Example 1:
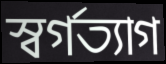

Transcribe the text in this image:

স্বর্গত্যাগ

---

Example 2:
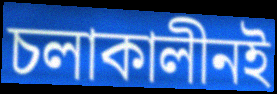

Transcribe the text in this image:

চলাকালীনই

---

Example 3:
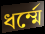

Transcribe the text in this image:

ধর্ম্মে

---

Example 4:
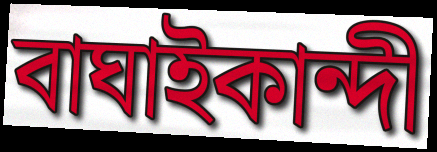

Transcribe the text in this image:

বাঘাইকান্দী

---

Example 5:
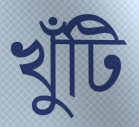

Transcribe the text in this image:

খুঁটি